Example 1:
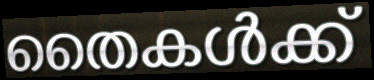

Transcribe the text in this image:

തൈകൾക്ക്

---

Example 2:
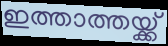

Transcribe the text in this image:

ഇത്താത്തയ്ക്ക്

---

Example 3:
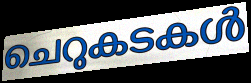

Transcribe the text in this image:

ചെറുകടകൾ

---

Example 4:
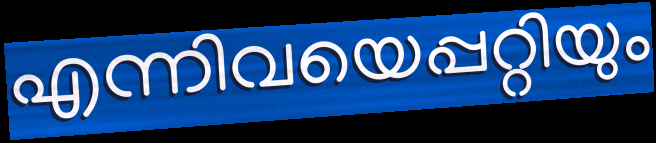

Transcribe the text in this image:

എന്നിവയെപ്പറ്റിയും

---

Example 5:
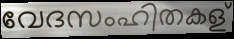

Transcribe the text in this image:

വേദസംഹിതകള്